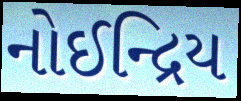
નોઈન્દ્રિય